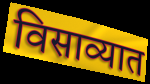
विसाव्यात